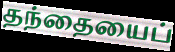
தந்தையைப்